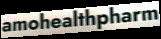
amohealthpharm